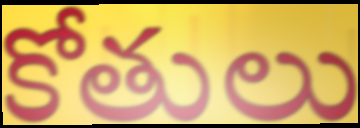
కోతులు